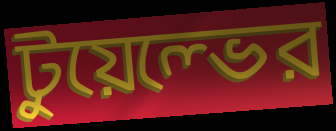
টুয়েল্ভের